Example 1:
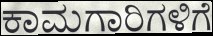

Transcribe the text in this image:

ಕಾಮಗಾರಿಗಳಿಗೆ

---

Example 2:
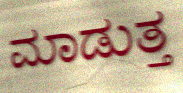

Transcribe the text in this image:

ಮಾಡುತ್ತ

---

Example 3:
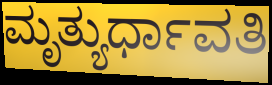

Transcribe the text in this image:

ಮೃತ್ಯುರ್ಧಾವತಿ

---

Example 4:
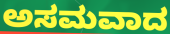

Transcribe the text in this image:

ಅಸಮವಾದ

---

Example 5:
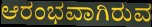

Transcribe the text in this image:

ಆರಂಭವಾಗಿರುವ